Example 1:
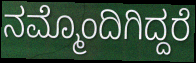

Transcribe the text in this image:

ನಮ್ಮೊಂದಿಗಿದ್ದರೆ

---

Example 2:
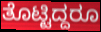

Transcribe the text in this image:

ತೊಟ್ಟಿದ್ದರೂ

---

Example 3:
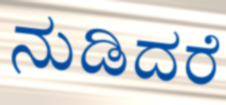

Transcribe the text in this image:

ನುಡಿದರೆ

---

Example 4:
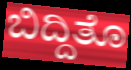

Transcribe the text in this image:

ಬಿದ್ದಿತೊ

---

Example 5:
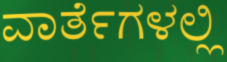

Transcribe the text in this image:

ವಾರ್ತೆಗಳಲ್ಲಿ